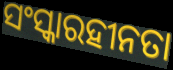
ସଂସ୍କାରହୀନତା